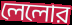
লেলোর